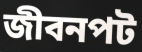
জীবনপট